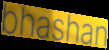
bhashan